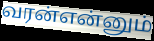
வரன்என்னும்